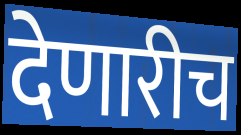
देणारीच